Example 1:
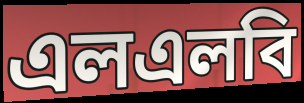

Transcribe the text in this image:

এলএলবি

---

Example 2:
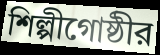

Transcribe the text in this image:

শিল্পীগোষ্ঠীর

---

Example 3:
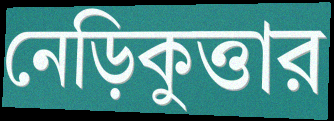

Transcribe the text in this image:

নেড়িকুত্তার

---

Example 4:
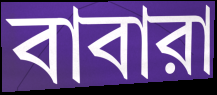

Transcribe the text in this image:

বাবারা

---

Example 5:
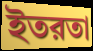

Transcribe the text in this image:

ইতরতা